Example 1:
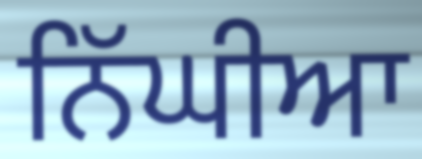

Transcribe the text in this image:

ਨਿੱਘੀਆ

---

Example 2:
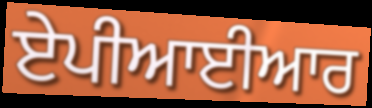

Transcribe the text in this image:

ਏਪੀਆਈਆਰ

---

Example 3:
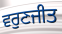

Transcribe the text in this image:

ਵਰੁਣਜੀਤ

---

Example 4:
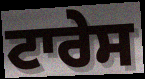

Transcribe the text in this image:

ਟਾਰੇਸ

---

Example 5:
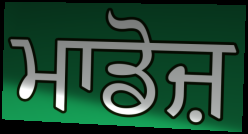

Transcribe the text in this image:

ਮਾਡੋਜ਼